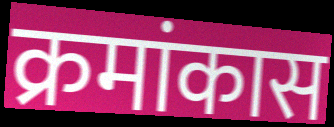
क्रमांकास